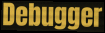
Debugger